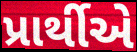
પ્રાર્થીએ